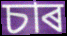
চাৰ